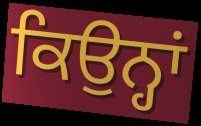
ਕਿਉਨ੍ਹਾਂ